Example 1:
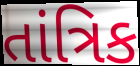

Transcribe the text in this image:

તાંત્રિક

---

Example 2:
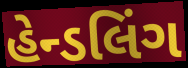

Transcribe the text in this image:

હેન્ડલિંગ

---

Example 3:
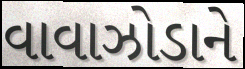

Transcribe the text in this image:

વાવાઝોડાને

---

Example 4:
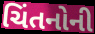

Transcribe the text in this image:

ચિંતનોની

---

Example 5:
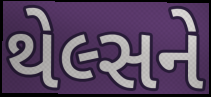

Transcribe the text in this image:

થેલ્સને